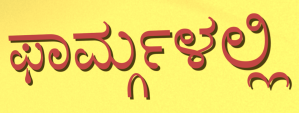
ಫಾರ್ಮ್ಗಳಲ್ಲಿ